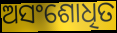
ଅସଂଶୋଧିତ